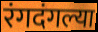
रंगदंगल्या